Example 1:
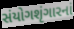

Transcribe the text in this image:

સંયોગશૃંગારનાં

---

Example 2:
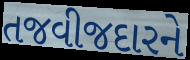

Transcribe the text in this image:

તજવીજદારને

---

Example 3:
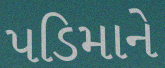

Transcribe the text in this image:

પડિમાને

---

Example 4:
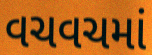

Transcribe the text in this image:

વચવચમાં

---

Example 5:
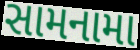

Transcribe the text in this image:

સામનામા